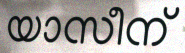
യാസീന്